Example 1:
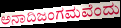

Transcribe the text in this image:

ಅನಾದಿಜಂಗಮವೆಂದು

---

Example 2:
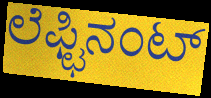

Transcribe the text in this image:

ಲೆಫ್ಟಿನಂಟ್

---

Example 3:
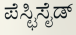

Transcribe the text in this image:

ಪೆಸ್ಟಿಸೈಡ್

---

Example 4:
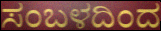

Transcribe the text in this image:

ಸಂಬಳದಿಂದ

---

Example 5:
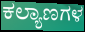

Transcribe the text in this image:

ಕಲ್ಯಾಣಗಳ